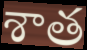
శాత